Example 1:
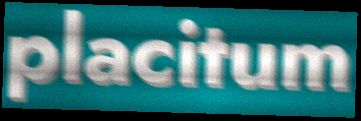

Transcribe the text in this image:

placitum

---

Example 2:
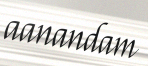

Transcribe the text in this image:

aanandam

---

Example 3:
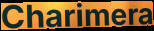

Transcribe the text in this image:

Charimera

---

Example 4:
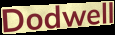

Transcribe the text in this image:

Dodwell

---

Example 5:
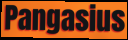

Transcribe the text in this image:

Pangasius